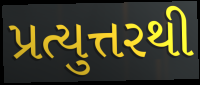
પ્રત્યુત્તરથી